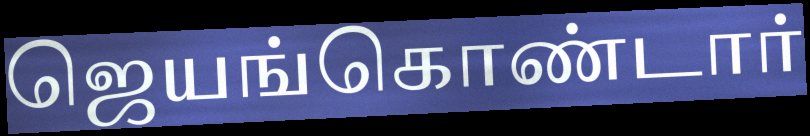
ஜெயங்கொண்டார்